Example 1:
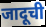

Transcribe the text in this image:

जादूची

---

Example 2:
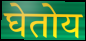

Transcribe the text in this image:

घेतोय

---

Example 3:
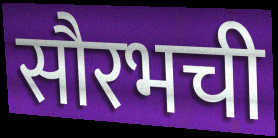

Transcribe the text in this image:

सौरभची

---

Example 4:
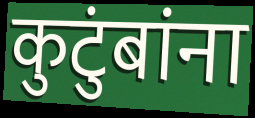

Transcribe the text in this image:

कुटुंबांना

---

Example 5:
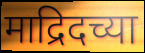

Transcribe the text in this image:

माद्रिदच्या